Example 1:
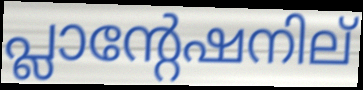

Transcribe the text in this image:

പ്ലാന്റേഷനില്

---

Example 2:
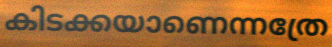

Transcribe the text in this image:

കിടക്കയാണെന്നത്രേ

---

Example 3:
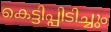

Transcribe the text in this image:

കെട്ടിപ്പിടിച്ചും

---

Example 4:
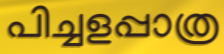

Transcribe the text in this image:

പിച്ചളപ്പാത്ര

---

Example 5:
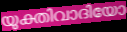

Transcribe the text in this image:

യുക്തിവാദിയോ